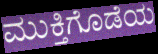
ಮುಕ್ತಿಗೊಡೆಯ